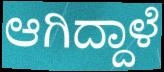
ಆಗಿದ್ದಾಳೆ